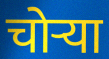
चोऱ्या